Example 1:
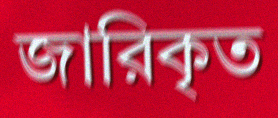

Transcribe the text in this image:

জারিকৃত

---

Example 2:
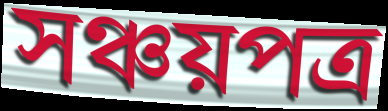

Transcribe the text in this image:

সঞ্চয়পত্র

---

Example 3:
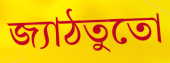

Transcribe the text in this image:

জ্যাঠতুতো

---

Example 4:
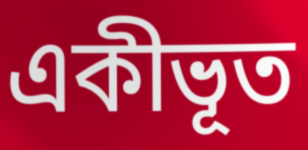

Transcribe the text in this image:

একীভূত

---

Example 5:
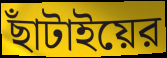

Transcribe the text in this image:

ছাঁটাইয়ের